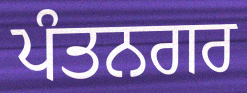
ਪੰਤਨਗਰ